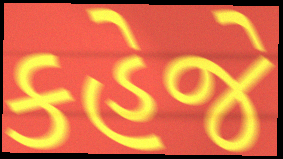
કહેજે